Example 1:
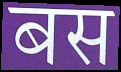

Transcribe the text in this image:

बस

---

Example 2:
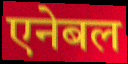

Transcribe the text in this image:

एनेबल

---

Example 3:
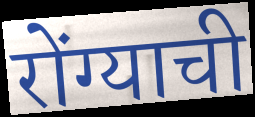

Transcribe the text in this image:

रोंग्याची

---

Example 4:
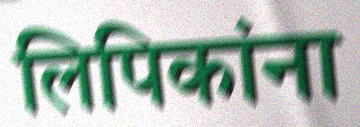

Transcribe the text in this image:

लिपिकांना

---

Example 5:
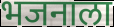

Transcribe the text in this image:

भजनाला